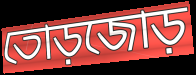
তোড়জোড়